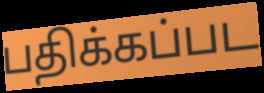
பதிக்கப்பட